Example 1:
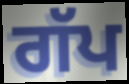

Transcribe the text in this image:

ਗੱਪ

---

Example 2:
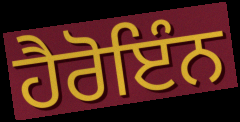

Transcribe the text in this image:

ਹੈਰੋਇੰਨ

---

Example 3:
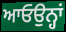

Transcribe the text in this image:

ਆਓਉਨ੍ਹਾਂ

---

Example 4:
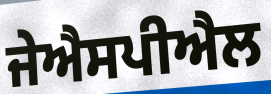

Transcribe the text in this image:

ਜੇਐਸਪੀਐਲ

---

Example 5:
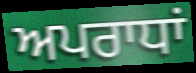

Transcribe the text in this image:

ਅਪਰਾਧਾਂ